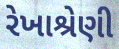
રેખાશ્રેણી